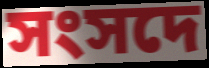
সংসদে